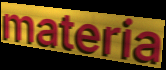
materia